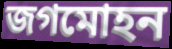
জগমোহন